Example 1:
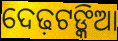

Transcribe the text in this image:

ଦେଢ଼ଟଙ୍କିଆ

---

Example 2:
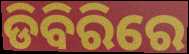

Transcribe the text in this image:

ଡିବିରିରେ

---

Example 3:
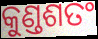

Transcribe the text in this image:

କୁଣ୍ଡଶତଂ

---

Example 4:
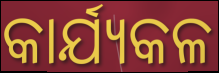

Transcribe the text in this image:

କାର୍ଯ୍ୟକଳ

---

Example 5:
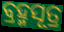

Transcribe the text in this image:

ବ୍ରହ୍ମସୂତ୍ର